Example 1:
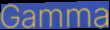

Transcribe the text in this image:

Gamma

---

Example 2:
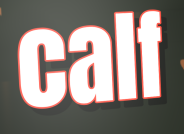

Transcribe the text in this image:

calf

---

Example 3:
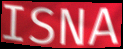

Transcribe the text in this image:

ISNA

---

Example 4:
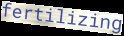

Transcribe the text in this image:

fertilizing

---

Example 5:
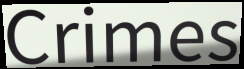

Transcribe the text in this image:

Crimes